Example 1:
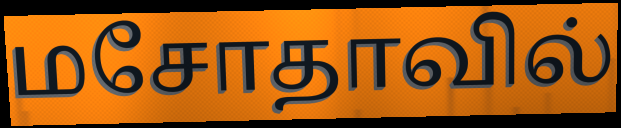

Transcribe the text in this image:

மசோதாவில்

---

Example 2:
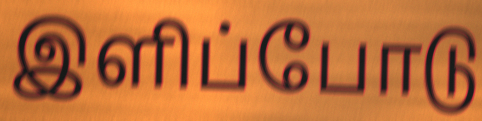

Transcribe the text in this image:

இளிப்போடு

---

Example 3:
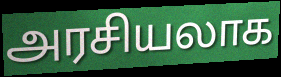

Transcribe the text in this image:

அரசியலாக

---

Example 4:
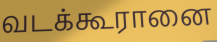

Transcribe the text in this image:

வடக்கூரானை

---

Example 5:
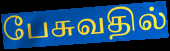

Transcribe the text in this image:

பேசுவதில்